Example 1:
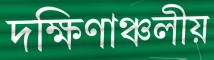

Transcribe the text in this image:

দক্ষিণাঞ্চলীয়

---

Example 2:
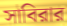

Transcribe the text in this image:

সাবিরার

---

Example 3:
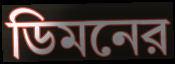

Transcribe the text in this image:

ডিমনের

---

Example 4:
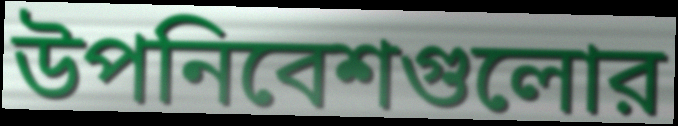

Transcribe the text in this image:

উপনিবেশগুলোর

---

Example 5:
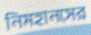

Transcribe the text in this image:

নিমহানসের